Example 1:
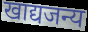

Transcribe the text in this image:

खाद्यजन्य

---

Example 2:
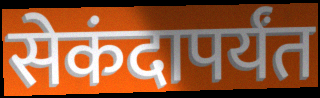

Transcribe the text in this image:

सेकंदापर्यंत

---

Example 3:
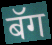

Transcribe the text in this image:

बॅग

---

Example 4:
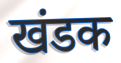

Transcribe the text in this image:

खंडक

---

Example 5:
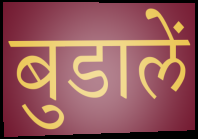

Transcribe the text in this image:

बुडालें